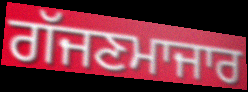
ਗੱਜਣਮਾਜਾਰ